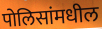
पोलिसांमधील